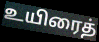
உயிரைத்